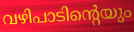
വഴിപാടിന്റെയും